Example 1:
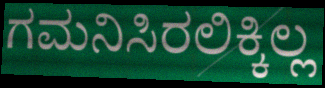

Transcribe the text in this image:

ಗಮನಿಸಿರಲಿಕ್ಕಿಲ್ಲ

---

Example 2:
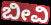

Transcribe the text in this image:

ಬೀವಿ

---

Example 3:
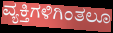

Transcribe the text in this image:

ವ್ಯಕ್ತಿಗಳಿಗಿಂತಲೂ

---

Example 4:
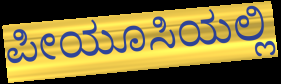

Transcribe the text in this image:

ಪೀಯೂಸಿಯಲ್ಲಿ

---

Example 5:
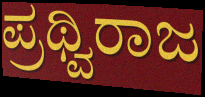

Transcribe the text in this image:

ಪ್ರಥ್ವಿರಾಜ